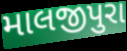
માલજીપુરા